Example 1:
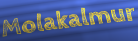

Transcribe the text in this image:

Molakalmur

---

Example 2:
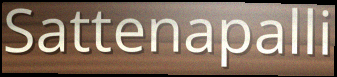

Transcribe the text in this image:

Sattenapalli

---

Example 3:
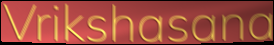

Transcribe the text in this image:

Vrikshasana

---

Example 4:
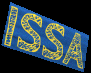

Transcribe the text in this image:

ISSA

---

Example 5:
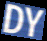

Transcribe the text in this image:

DY